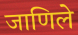
जाणिले